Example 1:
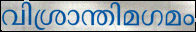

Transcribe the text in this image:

വിശ്രാന്തിമഗമം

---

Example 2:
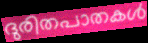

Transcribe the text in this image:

ദുരിതപാതകൾ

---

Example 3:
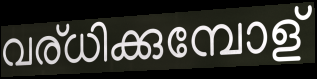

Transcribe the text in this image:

വര്ധിക്കുമ്പോള്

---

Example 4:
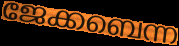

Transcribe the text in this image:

ജേക്കബെന്ന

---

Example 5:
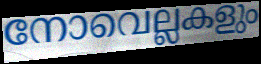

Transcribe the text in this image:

നോവെല്ലകളും